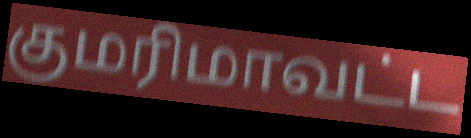
குமரிமாவட்ட